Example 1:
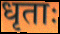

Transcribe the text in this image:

धृताः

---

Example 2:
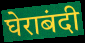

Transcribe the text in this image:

घेराबंदी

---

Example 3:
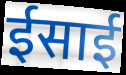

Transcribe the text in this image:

ईसाई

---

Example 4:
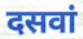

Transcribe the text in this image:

दसवां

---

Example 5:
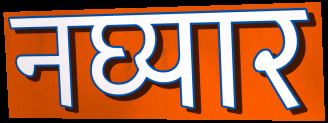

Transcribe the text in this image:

नघ्यार